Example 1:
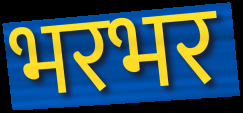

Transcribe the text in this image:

भरभर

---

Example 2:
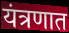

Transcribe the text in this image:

यंत्रणात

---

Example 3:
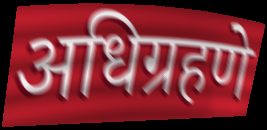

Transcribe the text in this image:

अधिग्रहणे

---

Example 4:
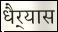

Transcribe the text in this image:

धैर्यास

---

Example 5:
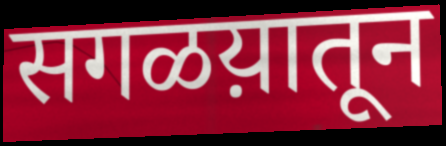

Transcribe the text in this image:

सगळय़ातून